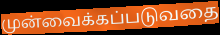
முன்வைக்கப்படுவதை